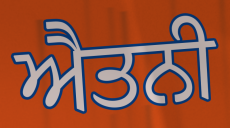
ਐਤਨੀ